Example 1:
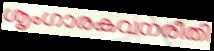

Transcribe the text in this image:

ശൃംഗാരകവനരീതി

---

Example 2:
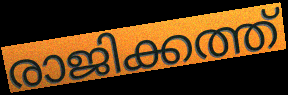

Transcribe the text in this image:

രാജിക്കത്ത്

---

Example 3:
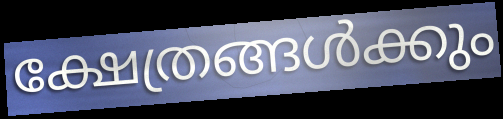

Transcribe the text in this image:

ക്ഷേത്രങ്ങൾക്കും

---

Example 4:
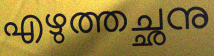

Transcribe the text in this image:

എഴുത്തച്ഛനു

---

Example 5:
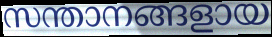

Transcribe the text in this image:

സന്താനങ്ങളായ